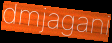
dmjagani